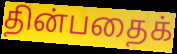
தின்பதைக்